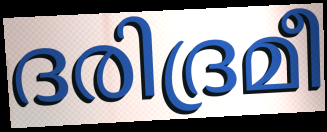
ദരിദ്രമീ